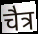
चैत्र